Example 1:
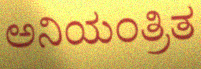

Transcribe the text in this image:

ಅನಿಯಂತ್ರಿತ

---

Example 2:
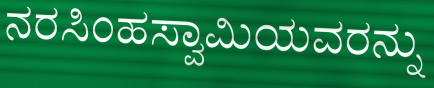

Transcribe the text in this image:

ನರಸಿಂಹಸ್ವಾಮಿಯವರನ್ನು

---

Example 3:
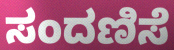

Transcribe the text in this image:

ಸಂದಣಿಸೆ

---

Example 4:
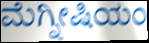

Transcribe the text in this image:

ಮೆಗ್ನೀಷಿಯಂ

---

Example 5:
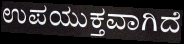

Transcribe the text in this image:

ಉಪಯುಕ್ತವಾಗಿದೆ